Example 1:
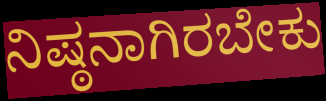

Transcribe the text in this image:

ನಿಷ್ಠನಾಗಿರಬೇಕು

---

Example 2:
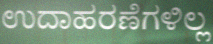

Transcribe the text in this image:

ಉದಾಹರಣೆಗಳಿಲ್ಲ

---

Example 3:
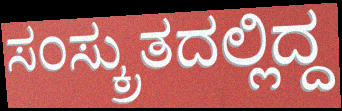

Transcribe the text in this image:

ಸಂಸ್ಕ್ರುತದಲ್ಲಿದ್ದ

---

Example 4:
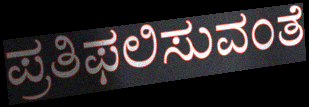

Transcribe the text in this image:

ಪ್ರತಿಫಲಿಸುವಂತೆ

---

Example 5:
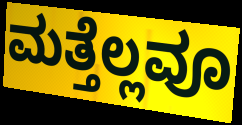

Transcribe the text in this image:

ಮತ್ತೆಲ್ಲವೂ